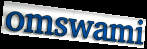
omswami